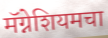
मॅग्नेशियमचा